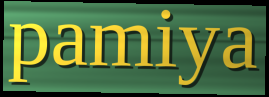
pamiya